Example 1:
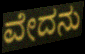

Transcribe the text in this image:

ವೇದನು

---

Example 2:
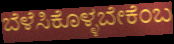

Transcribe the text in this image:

ಬೆಳೆಸಿಕೊಳ್ಳಬೇಕೆಂಬ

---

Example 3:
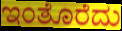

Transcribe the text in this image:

ಇಂತೊರೆದು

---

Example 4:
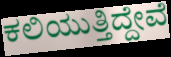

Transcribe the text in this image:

ಕಲಿಯುತ್ತಿದ್ದೇವೆ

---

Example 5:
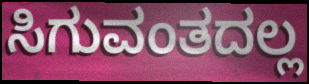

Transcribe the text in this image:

ಸಿಗುವಂತದಲ್ಲ